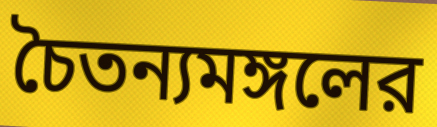
চৈতন্যমঙ্গলের